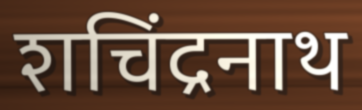
शचिंद्रनाथ